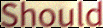
Should